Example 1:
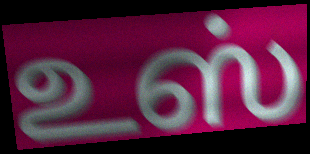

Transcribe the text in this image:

உஸ்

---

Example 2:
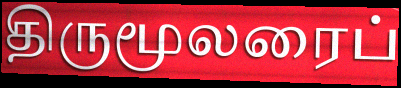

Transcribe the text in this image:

திருமூலரைப்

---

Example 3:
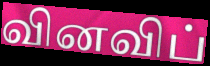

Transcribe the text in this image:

வினவிப்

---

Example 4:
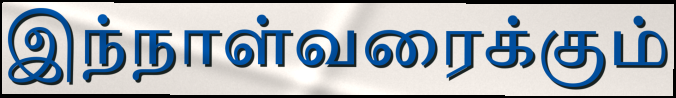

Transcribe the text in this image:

இந்நாள்வரைக்கும்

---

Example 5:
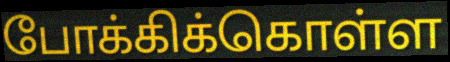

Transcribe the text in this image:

போக்கிக்கொள்ள